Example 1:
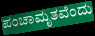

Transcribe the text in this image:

ಪಂಚಾಮೃತವೆಂದು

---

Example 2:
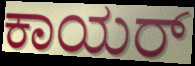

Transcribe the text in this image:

ಕಾಯರ್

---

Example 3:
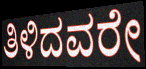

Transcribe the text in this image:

ತಿಳಿದವರೇ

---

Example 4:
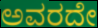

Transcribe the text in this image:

ಅವರದೇ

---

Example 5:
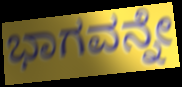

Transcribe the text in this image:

ಭಾಗವನ್ನೇ